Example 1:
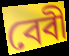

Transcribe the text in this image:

বেবী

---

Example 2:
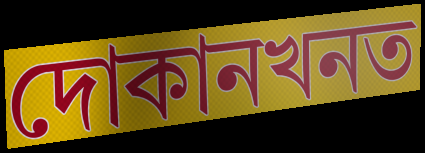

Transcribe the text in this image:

দোকানখনত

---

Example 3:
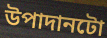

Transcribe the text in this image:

উপাদানটো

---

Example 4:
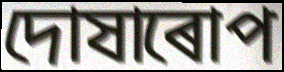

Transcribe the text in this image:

দোষাৰোপ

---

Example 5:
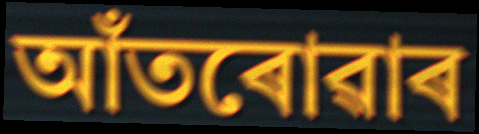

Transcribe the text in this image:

আঁতৰোৱাৰ